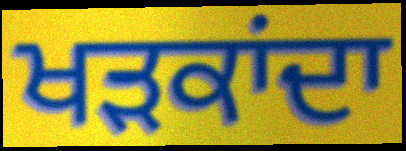
ਖੜਕਾਂਦਾ